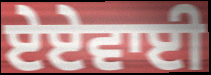
ਏਏਵਾਈ